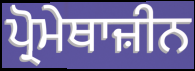
ਪ੍ਰੋਮੇਥਾਜ਼ੀਨ